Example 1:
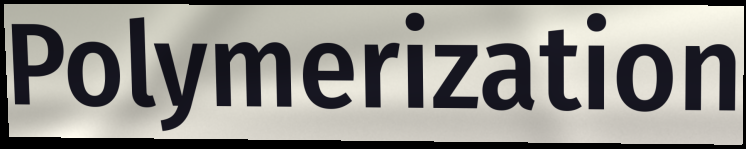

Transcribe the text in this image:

Polymerization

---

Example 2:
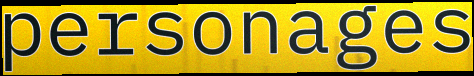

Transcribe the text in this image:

personages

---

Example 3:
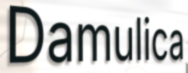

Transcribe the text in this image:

Damulica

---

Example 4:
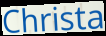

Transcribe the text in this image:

Christa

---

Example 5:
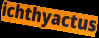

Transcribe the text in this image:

ichthyactus